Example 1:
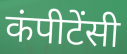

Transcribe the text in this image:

कंपीटेंसी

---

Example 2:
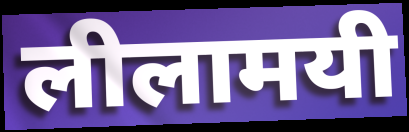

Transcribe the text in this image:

लीलामयी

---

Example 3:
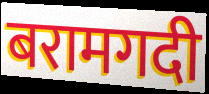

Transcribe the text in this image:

बरामगदी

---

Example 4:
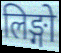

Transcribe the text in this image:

लिङ्गो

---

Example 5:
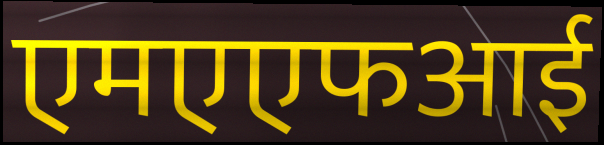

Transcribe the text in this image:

एमएएफआई